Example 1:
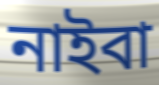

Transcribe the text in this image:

নাইবা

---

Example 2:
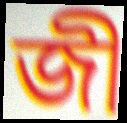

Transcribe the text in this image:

জী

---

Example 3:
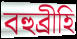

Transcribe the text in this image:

বহুব্ৰীহি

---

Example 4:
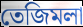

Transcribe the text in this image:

তেজিমলা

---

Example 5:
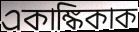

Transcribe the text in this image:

একাঙ্কিকাক